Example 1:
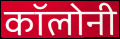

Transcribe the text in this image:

कॉलोनी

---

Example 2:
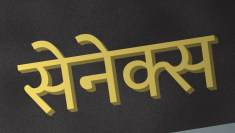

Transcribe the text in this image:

सेनेक्स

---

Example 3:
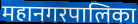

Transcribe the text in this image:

महानगरपालिका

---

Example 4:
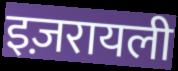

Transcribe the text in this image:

इज़रायली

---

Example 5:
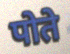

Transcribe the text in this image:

पोते